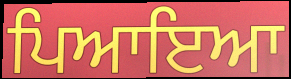
ਪਿਆਇਆ